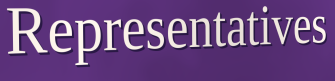
Representatives